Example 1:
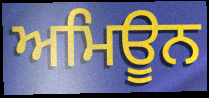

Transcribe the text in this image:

ਅਮਿਊਨ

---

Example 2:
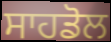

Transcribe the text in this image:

ਸਾਹਡੋਲ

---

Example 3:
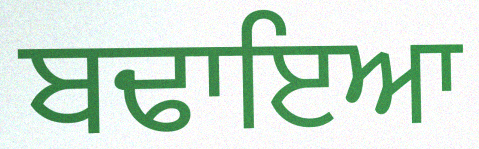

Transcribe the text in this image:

ਬਢਾਇਆ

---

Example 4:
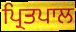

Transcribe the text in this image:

ਪ੍ਰਿਤਪਾਲ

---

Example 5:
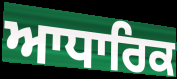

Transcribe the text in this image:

ਆਧਾਰਿਕ